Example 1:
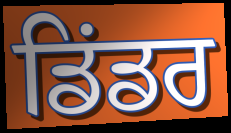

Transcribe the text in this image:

ਡਿਂਡਰ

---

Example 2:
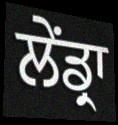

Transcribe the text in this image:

ਲੇਂਡ੍ਰਾ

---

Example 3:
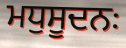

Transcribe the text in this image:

ਮਧੁਸੂਦਨਃ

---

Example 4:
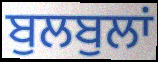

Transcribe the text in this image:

ਬੁਲਬੁਲਾਂ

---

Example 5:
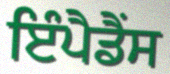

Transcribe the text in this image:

ਇੰਪੈਡੈਂਸ